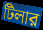
টিলার